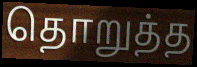
தொறுத்த